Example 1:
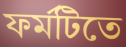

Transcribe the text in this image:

ফর্মটিতে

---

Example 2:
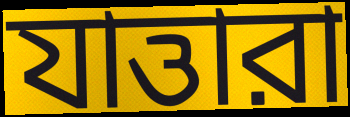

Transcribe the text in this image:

যাত্তারা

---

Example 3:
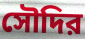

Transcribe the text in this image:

সৌদির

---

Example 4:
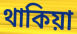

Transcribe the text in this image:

থাকিয়া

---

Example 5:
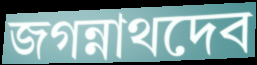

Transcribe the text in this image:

জগন্নাথদেব